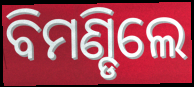
ବିମଣ୍ଡିଲେ